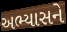
અભ્યાસને